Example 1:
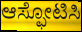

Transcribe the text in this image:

ಆಸ್ಫೋಟಿಸಿ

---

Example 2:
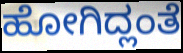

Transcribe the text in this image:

ಹೋಗಿದ್ಲಂತೆ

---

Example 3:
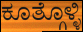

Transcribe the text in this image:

ಕೂತ್ಗೊಳ್ಳಿ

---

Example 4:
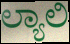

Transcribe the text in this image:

ಲ್ಯಾಲಿ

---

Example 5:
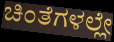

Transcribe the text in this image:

ಚಿಂತೆಗಳಲ್ಲೇ